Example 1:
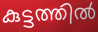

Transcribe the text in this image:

കുട്ടത്തിൽ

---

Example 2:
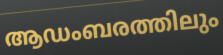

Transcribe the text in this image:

ആഡംബരത്തിലും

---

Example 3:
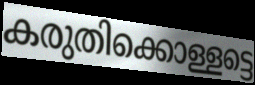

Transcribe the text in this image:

കരുതിക്കൊള്ളട്ടെ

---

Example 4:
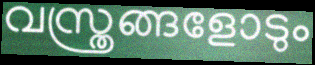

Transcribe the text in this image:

വസ്ത്രങ്ങളോടും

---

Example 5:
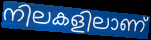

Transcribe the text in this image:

നിലകളിലാണ്